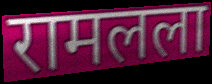
रामलला